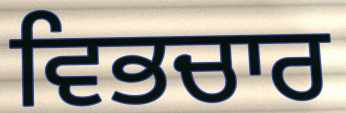
ਵਿਭਚਾਰ